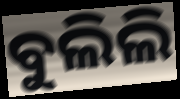
ବୁଲିଲି